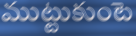
ముట్టుకుంటె